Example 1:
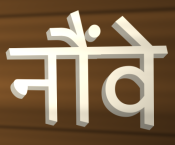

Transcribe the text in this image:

नौंवे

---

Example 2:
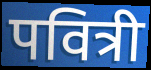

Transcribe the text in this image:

पवित्री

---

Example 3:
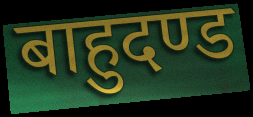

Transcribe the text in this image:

बाहुदण्ड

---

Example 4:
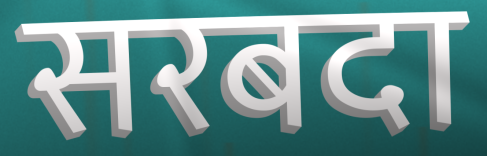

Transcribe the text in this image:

सरबदा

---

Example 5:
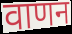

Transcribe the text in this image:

वाणन